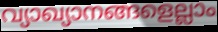
വ്യാഖ്യാനങ്ങളെല്ലാം